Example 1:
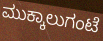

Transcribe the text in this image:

ಮುಕ್ಕಾಲುಗಂಟೆ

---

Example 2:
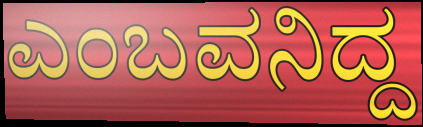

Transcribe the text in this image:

ಎಂಬವನಿದ್ದ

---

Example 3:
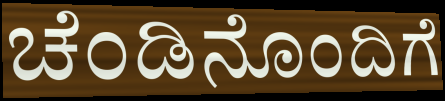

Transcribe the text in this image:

ಚೆಂಡಿನೊಂದಿಗೆ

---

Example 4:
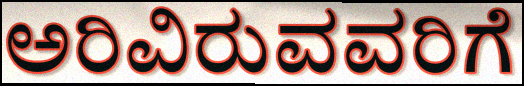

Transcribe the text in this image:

ಅರಿವಿರುವವರಿಗೆ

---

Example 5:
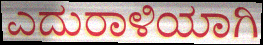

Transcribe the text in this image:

ಎದುರಾಳಿಯಾಗಿ